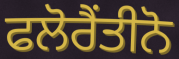
ਫਲੋਰੈਂਤੀਨੋ